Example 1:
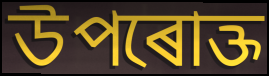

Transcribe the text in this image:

উপৰোক্ত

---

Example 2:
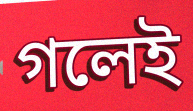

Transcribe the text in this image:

গলেই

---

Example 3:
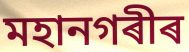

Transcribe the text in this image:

মহানগৰীৰ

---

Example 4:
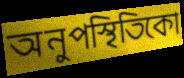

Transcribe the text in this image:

অনুপস্থিতিকো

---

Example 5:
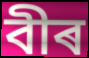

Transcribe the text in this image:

বীৰ